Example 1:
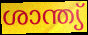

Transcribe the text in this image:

ശാന്ത്യ്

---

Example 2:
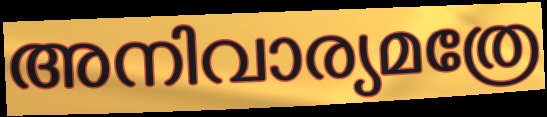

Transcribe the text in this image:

അനിവാര്യമത്രേ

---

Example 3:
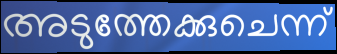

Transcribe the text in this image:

അടുത്തേക്കുചെന്ന്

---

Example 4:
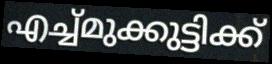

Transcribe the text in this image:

എച്ച്മുക്കുട്ടിക്ക്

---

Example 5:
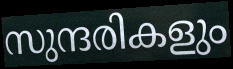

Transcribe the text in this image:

സുന്ദരികളും